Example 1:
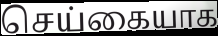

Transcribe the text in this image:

செய்கையாக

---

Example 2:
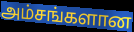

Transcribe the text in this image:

அம்சங்களான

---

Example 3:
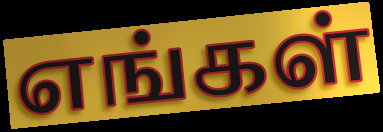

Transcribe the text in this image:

எங்கள்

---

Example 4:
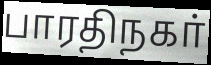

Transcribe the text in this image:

பாரதிநகர்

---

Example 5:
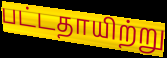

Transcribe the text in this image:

பட்டதாயிற்று